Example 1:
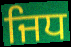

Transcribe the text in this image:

ਜਿਧ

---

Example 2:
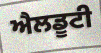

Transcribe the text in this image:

ਐਲਡੂਟੀ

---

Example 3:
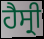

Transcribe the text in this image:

ਹੈਸ੍ਰੀ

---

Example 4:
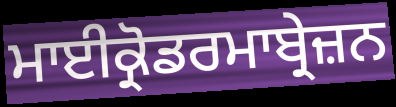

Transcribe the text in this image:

ਮਾਈਕ੍ਰੋਡਰਮਾਬ੍ਰੇਜ਼ਨ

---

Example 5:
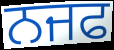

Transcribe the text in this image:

ਨਜਫ